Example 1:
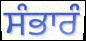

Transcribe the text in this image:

ਸੰਭਾਰੰ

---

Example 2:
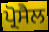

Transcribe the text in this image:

ਪ੍ਰੋਸੈਲ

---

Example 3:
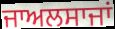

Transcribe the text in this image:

ਜਾਅਲਸਾਜਾਂ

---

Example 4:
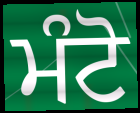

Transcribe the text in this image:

ਮੰਟੋ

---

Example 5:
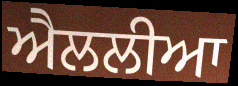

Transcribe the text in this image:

ਐਲਲੀਆ